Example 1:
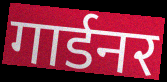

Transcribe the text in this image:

गार्डनर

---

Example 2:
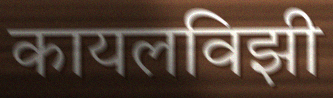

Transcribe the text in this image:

कायलविझी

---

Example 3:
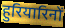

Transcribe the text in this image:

हुरियारिनों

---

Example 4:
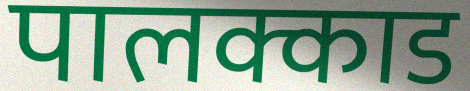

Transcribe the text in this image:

पालक्काड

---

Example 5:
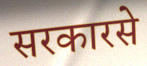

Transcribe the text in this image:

सरकारसे